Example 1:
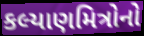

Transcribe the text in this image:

કલ્યાણમિત્રોનો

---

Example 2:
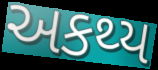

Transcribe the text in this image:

અકથ્ય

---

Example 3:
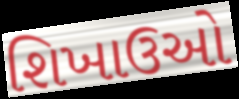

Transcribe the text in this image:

શિખાઉઓ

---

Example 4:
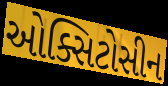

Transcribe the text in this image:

ઓક્સિટોસીન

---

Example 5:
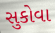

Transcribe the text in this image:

સુકોવા